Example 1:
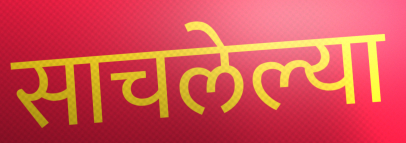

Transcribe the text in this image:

साचलेल्या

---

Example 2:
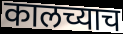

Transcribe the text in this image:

कालच्याच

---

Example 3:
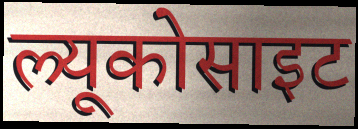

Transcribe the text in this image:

ल्यूकोसाइट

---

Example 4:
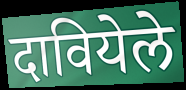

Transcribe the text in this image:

दावियेले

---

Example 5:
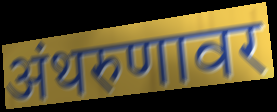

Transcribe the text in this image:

अंथरुणावर